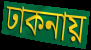
ঢাকনায়